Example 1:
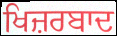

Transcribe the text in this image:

ਖਿਜ਼ਰਬਾਦ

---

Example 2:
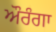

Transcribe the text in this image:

ਔਰੰਗਾ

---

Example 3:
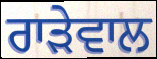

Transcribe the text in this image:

ਰਾੜੇਵਾਲ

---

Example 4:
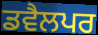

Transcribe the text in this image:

ਡਵੈਲਪਰ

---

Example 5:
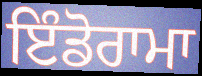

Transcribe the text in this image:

ਇੰਡੋਰਾਮਾ